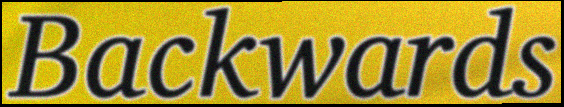
Backwards